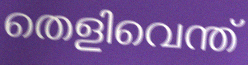
തെളിവെന്ത്